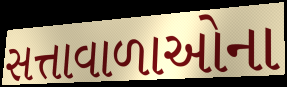
સત્તાવાળાઓના